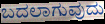
ಬದಲಾಗುವುದು